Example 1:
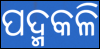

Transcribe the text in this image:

ପଦ୍ମକଳି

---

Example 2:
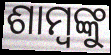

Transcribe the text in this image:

ଶାମ୍ବଙ୍କୁ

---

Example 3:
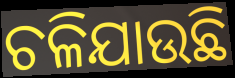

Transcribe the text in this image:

ଚଳିଯାଉଛି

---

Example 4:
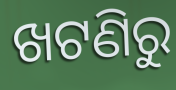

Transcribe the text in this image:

ଖଟଣିରୁ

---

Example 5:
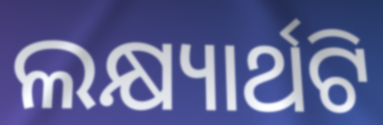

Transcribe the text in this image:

ଲକ୍ଷ୍ୟାର୍ଥଟି